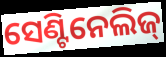
ସେଣ୍ଟିନେଲିଜ୍